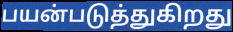
பயன்படுத்துகிறது